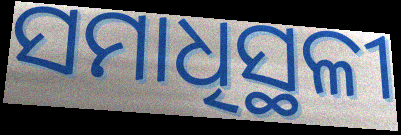
ସମାଧିସ୍ଥଳୀ